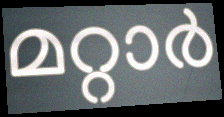
മറ്റാർ